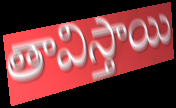
తావిస్తాయి